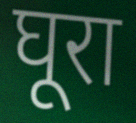
घूरा